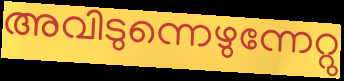
അവിടുന്നെഴുന്നേറ്റു